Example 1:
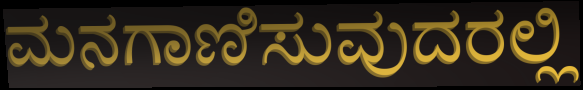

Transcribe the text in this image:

ಮನಗಾಣಿಸುವುದರಲ್ಲಿ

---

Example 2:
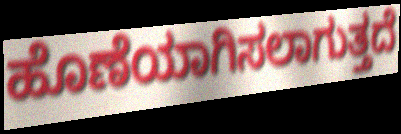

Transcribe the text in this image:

ಹೊಣೆಯಾಗಿಸಲಾಗುತ್ತದೆ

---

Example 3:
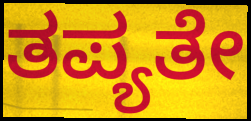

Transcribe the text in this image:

ತಪ್ಯತೇ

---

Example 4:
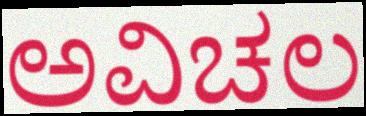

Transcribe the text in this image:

ಅವಿಚಲ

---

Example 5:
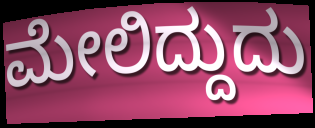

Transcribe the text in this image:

ಮೇಲಿದ್ದುದು